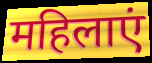
महिलाएं